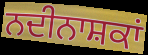
ਨਦੀਨਾਸ਼ਕਾਂ